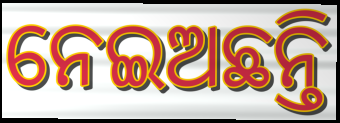
ନେଇଅଛନ୍ତି